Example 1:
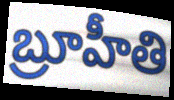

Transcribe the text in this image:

బ్రూహీతి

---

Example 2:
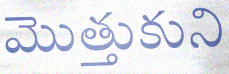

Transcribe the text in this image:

మొత్తుకుని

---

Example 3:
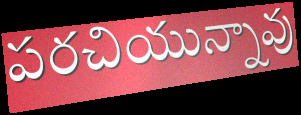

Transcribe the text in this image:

పరచియున్నావు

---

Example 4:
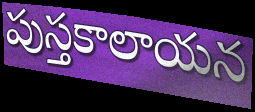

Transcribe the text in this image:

పుస్తకాలాయన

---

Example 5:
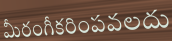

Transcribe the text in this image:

మీరంగీకరింపవలదు